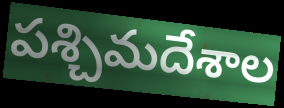
పశ్చిమదేశాల